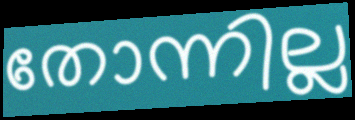
തോന്നില്ല